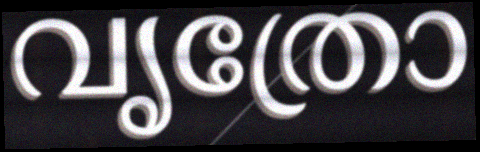
വൃത്രോ